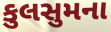
કુલસુમના